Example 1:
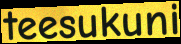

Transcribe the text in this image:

teesukuni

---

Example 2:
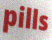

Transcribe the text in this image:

pills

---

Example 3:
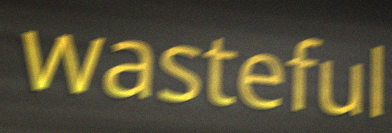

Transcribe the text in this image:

wasteful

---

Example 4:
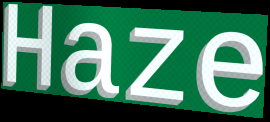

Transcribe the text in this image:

Haze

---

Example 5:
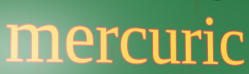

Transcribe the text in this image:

mercuric